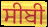
ਸੀਬੀ